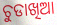
ଚୁଡାଖିଆ